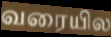
வரையில